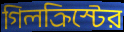
গিলক্রিস্টের